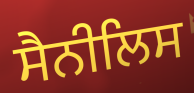
ਸੈਨੀਲਿਸ